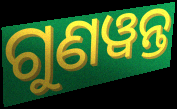
ଗୁଣୱନ୍ତ